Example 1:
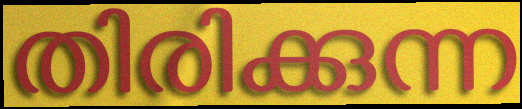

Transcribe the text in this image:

തിരിക്കുന്ന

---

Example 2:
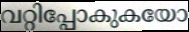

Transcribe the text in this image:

വറ്റിപ്പോകുകയോ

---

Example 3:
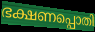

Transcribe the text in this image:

ഭക്ഷണപ്പൊതി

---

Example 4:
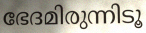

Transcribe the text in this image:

ഭേദമിരുന്നിടൂ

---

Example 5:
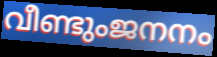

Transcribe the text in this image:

വീണ്ടുംജനനം